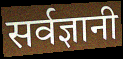
सर्वज्ञानी